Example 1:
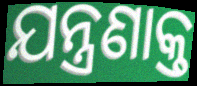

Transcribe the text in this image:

ଯନ୍ତ୍ରଣାକ୍ତ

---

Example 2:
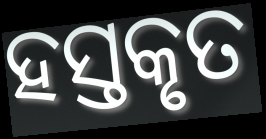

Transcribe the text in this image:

ହସ୍ତକୃତ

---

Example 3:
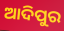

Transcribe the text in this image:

ଆଦିପୁର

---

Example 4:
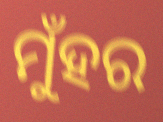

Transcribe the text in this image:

ମୁଁହର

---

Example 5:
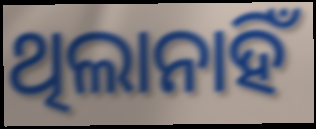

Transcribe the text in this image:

ଥିଲାନାହିଁ